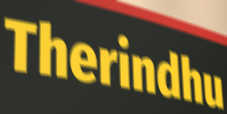
Therindhu